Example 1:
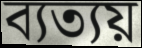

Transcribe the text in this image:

ব্যত্যয়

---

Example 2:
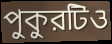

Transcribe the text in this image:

পুকুরটিও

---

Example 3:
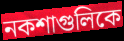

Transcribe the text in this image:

নকশাগুলিকে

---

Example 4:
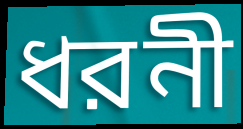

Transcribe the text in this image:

ধরনী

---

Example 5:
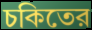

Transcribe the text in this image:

চকিতের